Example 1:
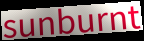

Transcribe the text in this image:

sunburnt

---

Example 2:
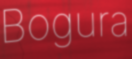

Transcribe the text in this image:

Bogura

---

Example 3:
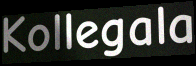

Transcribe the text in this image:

Kollegala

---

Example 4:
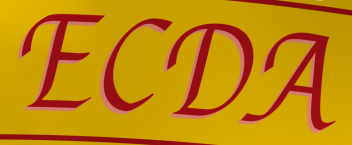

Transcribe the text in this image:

ECDA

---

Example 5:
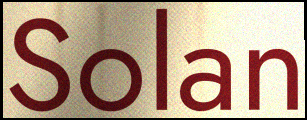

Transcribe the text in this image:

Solan